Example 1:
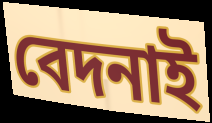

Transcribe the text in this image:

বেদনাই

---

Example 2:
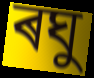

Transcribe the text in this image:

ৰঘু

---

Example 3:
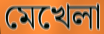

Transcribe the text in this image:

মেখেলা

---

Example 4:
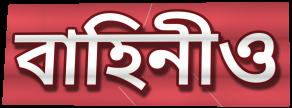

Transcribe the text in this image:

বাহিনীও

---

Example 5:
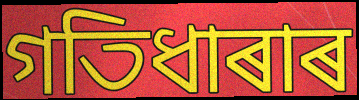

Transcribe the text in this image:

গতিধাৰাৰ